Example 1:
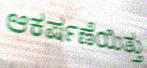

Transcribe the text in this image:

ಆಕರ್ಷಣೆಯಿತ್ತು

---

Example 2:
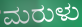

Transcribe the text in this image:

ಮರುಳು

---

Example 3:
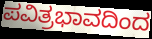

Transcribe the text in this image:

ಪವಿತ್ರಭಾವದಿಂದ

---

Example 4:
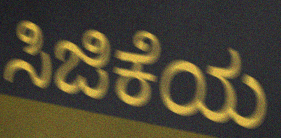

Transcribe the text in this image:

ಸಿಜಿಕೆಯ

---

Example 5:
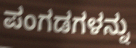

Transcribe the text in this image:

ಪಂಗಡಗಳನ್ನು